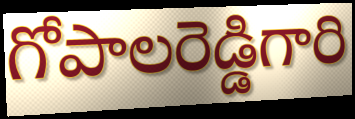
గోపాలరెడ్డిగారి